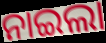
ନାଇଲା